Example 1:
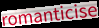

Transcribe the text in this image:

romanticise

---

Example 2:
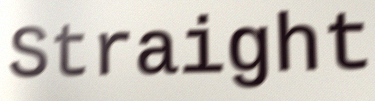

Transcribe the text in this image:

Straight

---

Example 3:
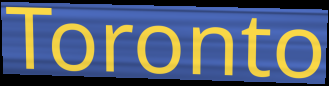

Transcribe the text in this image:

Toronto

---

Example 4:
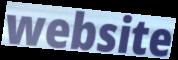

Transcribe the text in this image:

website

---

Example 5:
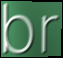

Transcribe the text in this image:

br